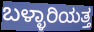
ಬಳ್ಳಾರಿಯತ್ತ